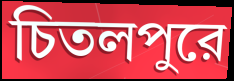
চিতলপুরে